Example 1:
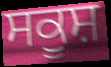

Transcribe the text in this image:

ਸਕੂਸ਼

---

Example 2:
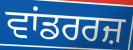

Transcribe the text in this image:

ਵਾਂਡਰਰਜ਼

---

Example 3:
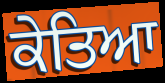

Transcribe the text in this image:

ਕੇਤਿਆ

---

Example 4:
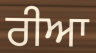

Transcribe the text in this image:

ਰੀਆ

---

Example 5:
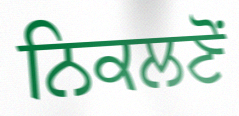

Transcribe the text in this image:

ਨਿਕਲਣੋਂ